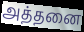
அத்தனை